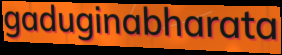
gaduginabharata